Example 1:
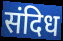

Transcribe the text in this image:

संदिध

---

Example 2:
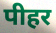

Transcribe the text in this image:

पीहर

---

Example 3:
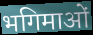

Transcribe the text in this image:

भगिमाओं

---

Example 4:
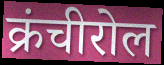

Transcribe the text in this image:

क्रंचीरोल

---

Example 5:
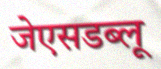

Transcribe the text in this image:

जेएसडब्‍लू